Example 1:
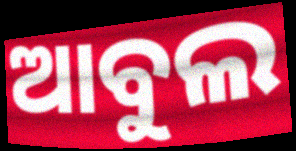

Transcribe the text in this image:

ଆବୁଲ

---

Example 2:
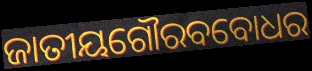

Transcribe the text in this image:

ଜାତୀୟଗୌରବବୋଧର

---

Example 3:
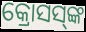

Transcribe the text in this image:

କ୍ରୋସସ୍‌ଙ୍କ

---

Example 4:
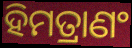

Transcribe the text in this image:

ହିମତ୍ରାଣଂ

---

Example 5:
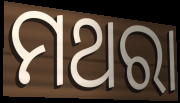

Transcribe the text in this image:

ମଥରା